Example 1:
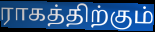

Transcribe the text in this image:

ராகத்திற்கும்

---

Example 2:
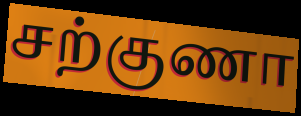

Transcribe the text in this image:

சற்குணா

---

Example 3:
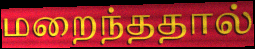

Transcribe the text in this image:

மறைந்ததால்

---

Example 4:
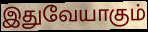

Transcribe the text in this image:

இதுவேயாகும்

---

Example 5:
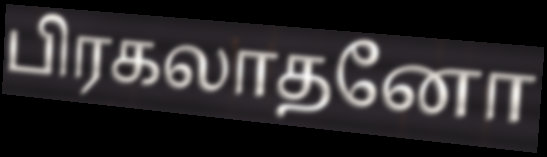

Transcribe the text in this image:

பிரகலாதனோ